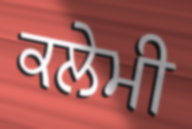
ਕਲੇਮੀ